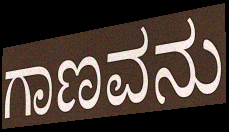
ಗಾಣವನು